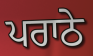
ਪਰਾਠੇ